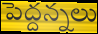
పెద్దన్నలు